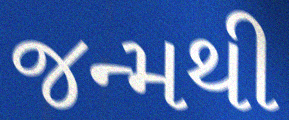
જન્મથી